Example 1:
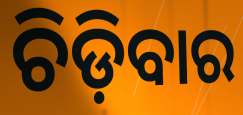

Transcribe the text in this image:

ଚିଡ଼ିବାର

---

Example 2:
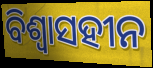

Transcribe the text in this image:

ବିଶ୍ୱାସହୀନ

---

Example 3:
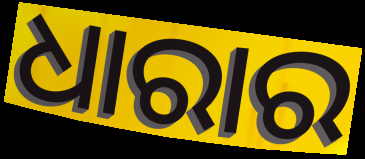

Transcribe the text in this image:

ଧାରାର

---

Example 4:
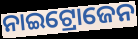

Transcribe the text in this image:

ନାଇଟ୍ରୋଜେନ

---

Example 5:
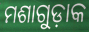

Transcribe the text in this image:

ମଶାଗୁଡ଼ାକ